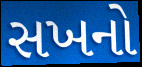
સખનો